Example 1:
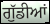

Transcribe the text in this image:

ਗੁੱਡੀਆਂ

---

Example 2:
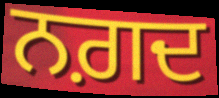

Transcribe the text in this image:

ਨਗ਼ਦ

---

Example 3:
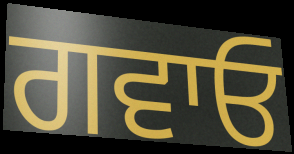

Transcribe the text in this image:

ਗਵਾਓ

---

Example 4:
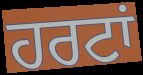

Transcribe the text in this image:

ਹਰਟਾਂ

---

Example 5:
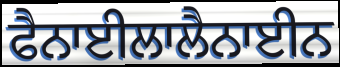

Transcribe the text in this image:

ਫੈਨਾਈਲਾਲੈਨਾਈਨ